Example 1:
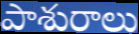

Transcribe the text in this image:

పాశురాలు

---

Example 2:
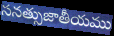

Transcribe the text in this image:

సనత్సుజాతీయము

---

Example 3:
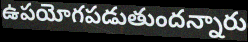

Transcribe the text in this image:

ఉపయోగపడుతుందన్నారు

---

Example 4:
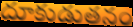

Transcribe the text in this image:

దూకుడుతనం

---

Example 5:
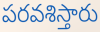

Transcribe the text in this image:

పరవశిస్తారు